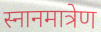
स्नानमात्रेण